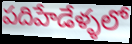
పదిహేడేళ్ళలో